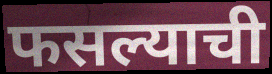
फसल्याची